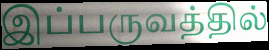
இப்பருவத்தில்